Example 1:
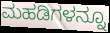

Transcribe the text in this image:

ಮಹಡಿಗಳನ್ನೂ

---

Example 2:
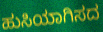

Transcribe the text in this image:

ಹುಸಿಯಾಗಿಸದ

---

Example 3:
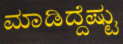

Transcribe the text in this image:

ಮಾಡಿದ್ದೆಷ್ಟು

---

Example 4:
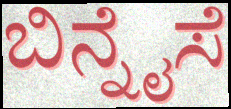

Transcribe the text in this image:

ಬಿನ್ನೈಸೆ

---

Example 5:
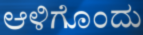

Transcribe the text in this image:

ಆಳಿಗೊಂದು